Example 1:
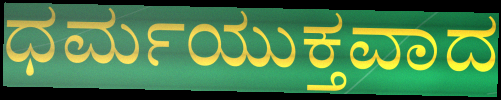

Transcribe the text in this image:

ಧರ್ಮಯುಕ್ತವಾದ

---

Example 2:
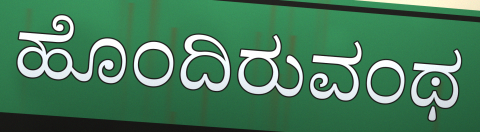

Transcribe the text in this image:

ಹೊಂದಿರುವಂಥ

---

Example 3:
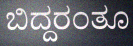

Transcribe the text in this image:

ಬಿದ್ದರಂತೂ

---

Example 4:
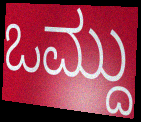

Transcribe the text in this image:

ಒಮ್ದು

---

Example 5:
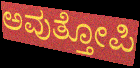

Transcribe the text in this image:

ಅವುತ್ತೋಪಿ